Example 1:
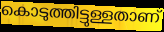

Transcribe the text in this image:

കൊടുത്തിട്ടുള്ളതാണ്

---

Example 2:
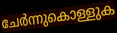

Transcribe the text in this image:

ചേർന്നുകൊള്ളുക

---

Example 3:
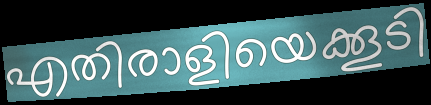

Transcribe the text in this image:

എതിരാളിയെക്കൂടി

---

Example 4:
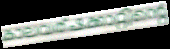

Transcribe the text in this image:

കാലവര്ഷക്കാറ്റിന്റെ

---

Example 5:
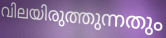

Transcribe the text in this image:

വിലയിരുത്തുന്നതും